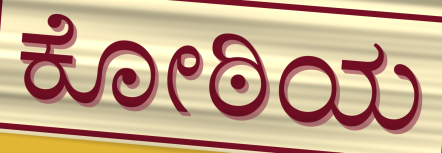
ಕೋಠಿಯ